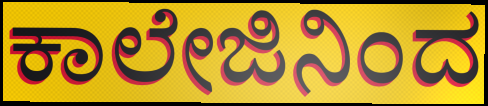
ಕಾಲೇಜಿನಿಂದ